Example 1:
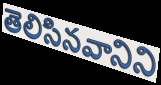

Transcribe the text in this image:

తెలిసినవానిని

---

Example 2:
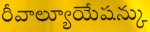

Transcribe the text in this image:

రీవాల్యూయేషన్కు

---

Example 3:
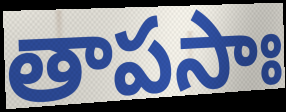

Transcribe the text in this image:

తాపసాః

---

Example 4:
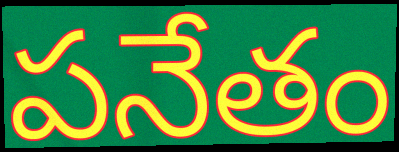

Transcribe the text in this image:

పనేతం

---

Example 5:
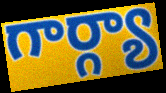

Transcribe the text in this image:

గార్గ్యా